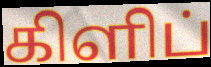
கிளிப்